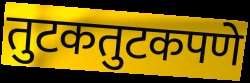
तुटकतुटकपणे